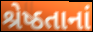
શ્રેષ્ઠતાનાં